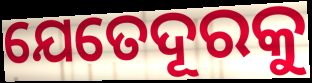
ଯେତେଦୂରକୁ